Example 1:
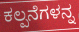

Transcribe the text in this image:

ಕಲ್ಪನೆಗಳನ್ನ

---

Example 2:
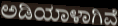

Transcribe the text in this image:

ಅಡಿಯಾಳಾಗಿವೆ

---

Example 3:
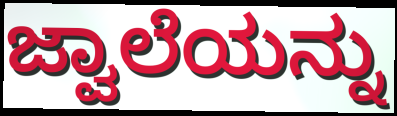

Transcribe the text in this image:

ಜ್ವಾಲೆಯನ್ನು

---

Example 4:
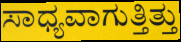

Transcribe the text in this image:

ಸಾಧ್ಯವಾಗುತ್ತಿತ್ತು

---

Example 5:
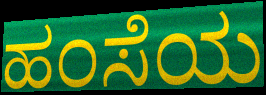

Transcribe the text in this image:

ಹಂಸೆಯ